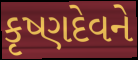
કૃષ્ણદેવને